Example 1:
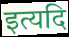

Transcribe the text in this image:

इत्यदि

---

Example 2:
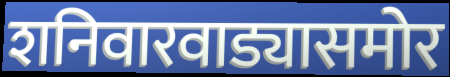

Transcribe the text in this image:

शनिवारवाड्यासमोर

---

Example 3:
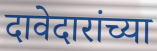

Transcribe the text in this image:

दावेदारांच्या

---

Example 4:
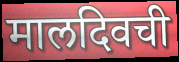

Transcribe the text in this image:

मालदिवची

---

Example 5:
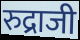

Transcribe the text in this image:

रुद्राजी